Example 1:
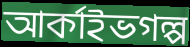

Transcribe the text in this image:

আর্কাইভগল্প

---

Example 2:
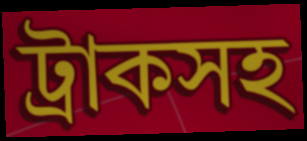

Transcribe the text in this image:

ট্রাকসহ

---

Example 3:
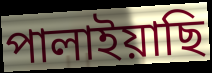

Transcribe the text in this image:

পালাইয়াছি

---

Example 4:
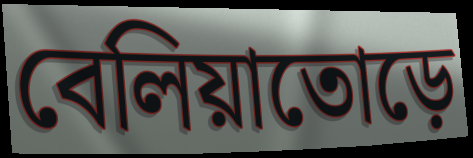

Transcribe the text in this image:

বেলিয়াতোড়ে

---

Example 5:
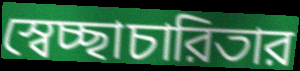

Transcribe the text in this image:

স্বেচ্ছাচারিতার